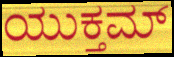
ಯುಕ್ತಮ್